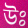
উঃ